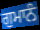
ਗੁਮਾਨੰ